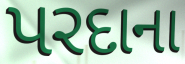
પરદાના